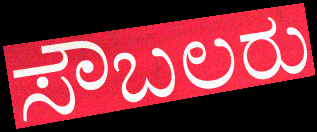
ಸೌಬಲರು